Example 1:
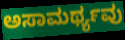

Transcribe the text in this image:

ಅಸಾಮರ್ಥ್ಯವು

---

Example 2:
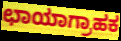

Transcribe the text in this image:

ಛಾಯಾಗ್ರಾಹಕ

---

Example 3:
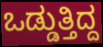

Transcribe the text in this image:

ಒಡ್ಡುತ್ತಿದ್ದ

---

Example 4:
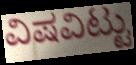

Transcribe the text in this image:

ವಿಷವಿಟ್ಟು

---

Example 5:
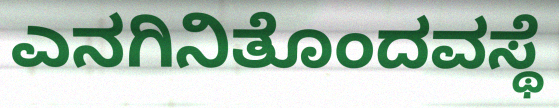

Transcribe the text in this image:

ಎನಗಿನಿತೊಂದವಸ್ಥೆ